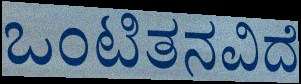
ಒಂಟಿತನವಿದೆ